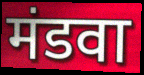
मंडवा